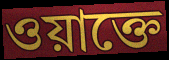
ওয়াক্তে